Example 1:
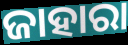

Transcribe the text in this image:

ଜାହାରା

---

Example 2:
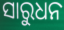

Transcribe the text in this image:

ସାରୁଧନ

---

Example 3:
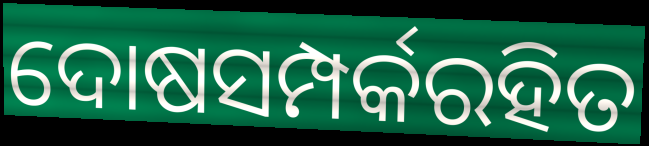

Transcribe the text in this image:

ଦୋଷସମ୍ପର୍କରହିତ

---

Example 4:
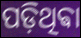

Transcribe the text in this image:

ପଡ଼ିଥିଵା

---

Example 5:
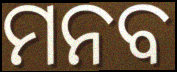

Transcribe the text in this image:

ମନବ